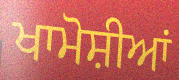
ਖਾਮੋਸ਼ੀਆਂ